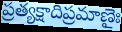
ప్రత్యక్షాదిప్రమాణైః